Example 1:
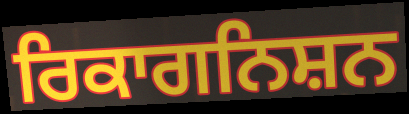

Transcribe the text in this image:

ਰਿਕਾਗਨਿਸ਼ਨ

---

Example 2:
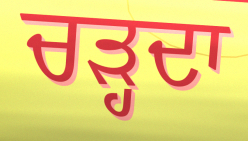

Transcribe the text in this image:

ਚੜ੍ਹਦਾ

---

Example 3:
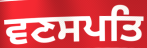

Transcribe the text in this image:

ਵਣਸਪਤਿ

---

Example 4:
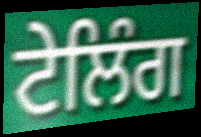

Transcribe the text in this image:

ਟੇਲਿੰਗ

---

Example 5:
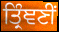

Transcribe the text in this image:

ਤ੍ਰਿੰਞਣੀਂ